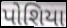
પોશિયા